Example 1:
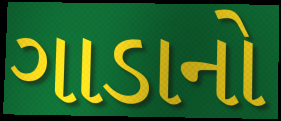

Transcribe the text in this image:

ગાડાનો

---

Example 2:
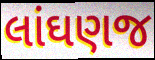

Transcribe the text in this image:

લાંઘણજ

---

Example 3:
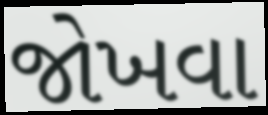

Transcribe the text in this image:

જોખવા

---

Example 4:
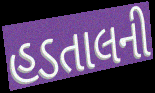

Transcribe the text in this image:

હડતાલની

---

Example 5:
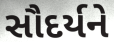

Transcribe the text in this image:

સૌદર્યને